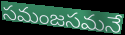
సమంజసమనే